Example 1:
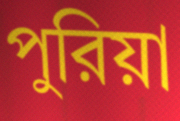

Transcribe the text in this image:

পুরিয়া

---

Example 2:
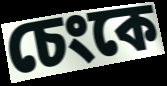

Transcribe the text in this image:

চেংকে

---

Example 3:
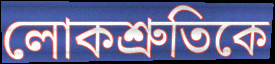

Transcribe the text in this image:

লোকশ্রুতিকে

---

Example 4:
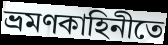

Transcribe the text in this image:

ভ্রমণকাহিনীতে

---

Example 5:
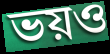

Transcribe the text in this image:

ভয়ও